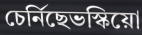
চেৰ্নিছেভস্কিয়ো